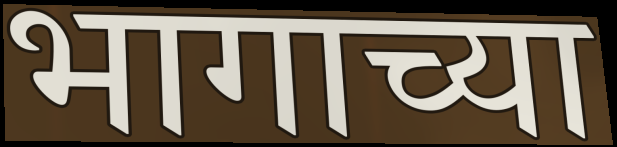
भागाच्या